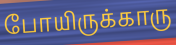
போயிருக்காரு